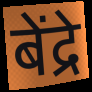
बेंद्रे